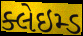
ક્લેઇમ્ડ